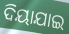
ଦିୟାଯାଇ